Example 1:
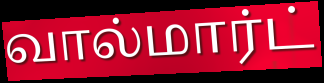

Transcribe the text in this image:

வால்மார்ட்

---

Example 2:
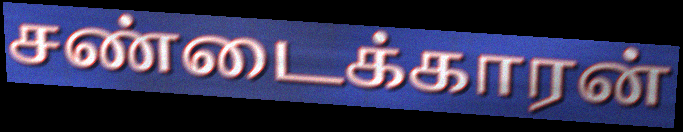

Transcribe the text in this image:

சண்டைக்காரன்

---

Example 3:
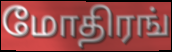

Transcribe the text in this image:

மோதிரங்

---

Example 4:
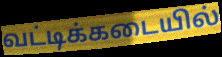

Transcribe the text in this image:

வட்டிக்கடையில்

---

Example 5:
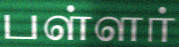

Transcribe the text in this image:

பள்ளர்